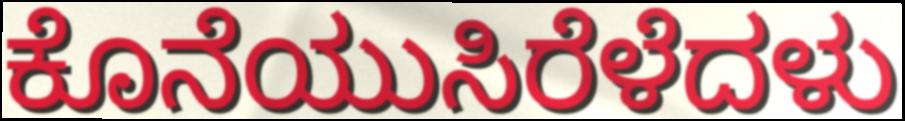
ಕೊನೆಯುಸಿರೆಳೆದಳು